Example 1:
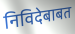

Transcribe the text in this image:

निविदेबाबत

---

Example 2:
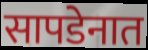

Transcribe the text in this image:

सापडेनात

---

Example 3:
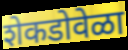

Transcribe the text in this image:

शेकडोवेळा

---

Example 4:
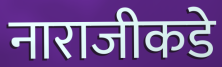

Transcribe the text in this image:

नाराजीकडे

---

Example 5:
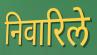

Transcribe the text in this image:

निवारिले